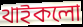
থাইকলো